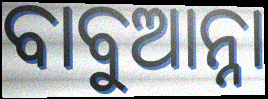
ବାବୁଆନ୍ନା